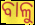
ବାଳୁ